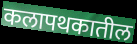
कलापथकातील